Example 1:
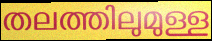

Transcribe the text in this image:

തലത്തിലുമുള്ള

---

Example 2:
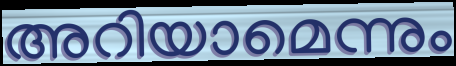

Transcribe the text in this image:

അറിയാമെന്നും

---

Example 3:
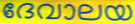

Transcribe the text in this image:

ദേവാലയ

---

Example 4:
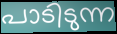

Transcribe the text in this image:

പാടിടുന്ന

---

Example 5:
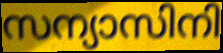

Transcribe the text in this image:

സന്യാസിനി